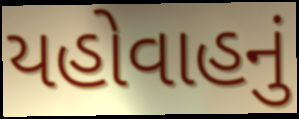
યહોવાહનું